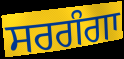
ਸਰਗੰਗਾ